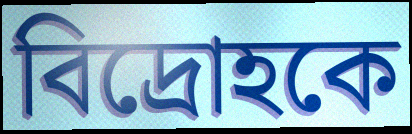
বিদ্রোহকে